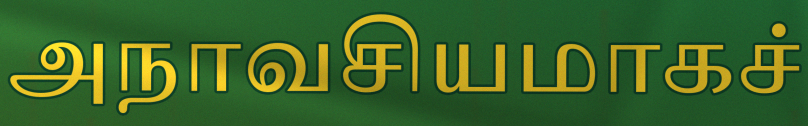
அநாவசியமாகச்